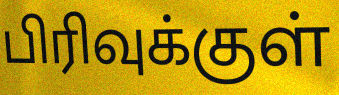
பிரிவுக்குள்